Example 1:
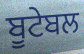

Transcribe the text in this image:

ਬੂਟੇਬਲ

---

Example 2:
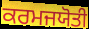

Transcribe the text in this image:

ਕਰਮਜਯੋਤੀ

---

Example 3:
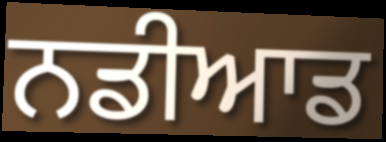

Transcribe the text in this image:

ਨਡੀਆਡ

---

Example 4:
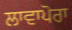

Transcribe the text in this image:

ਲਾਵਾਪੋਰਾ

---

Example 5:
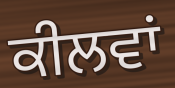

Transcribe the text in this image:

ਕੀਲਵਾਂ